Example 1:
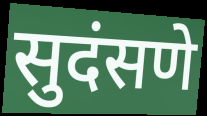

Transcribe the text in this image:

सुदंसणे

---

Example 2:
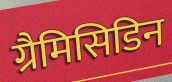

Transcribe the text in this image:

ग्रैमिसिडिन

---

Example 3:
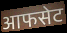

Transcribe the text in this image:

आफसेट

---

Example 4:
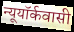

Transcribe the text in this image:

न्यूयॉर्कवासी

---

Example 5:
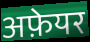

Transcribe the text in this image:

अफ़ेयर